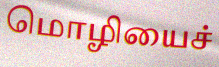
மொழியைச்